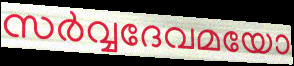
സർവ്വദേവമയോ